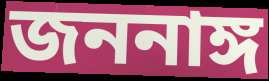
জননাঙ্গ